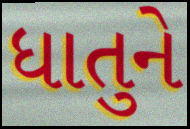
ધાતુને